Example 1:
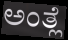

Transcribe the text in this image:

ಅಂತ್ಲೆ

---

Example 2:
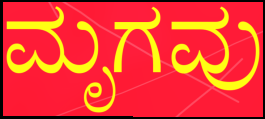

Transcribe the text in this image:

ಮೃಗವು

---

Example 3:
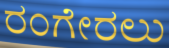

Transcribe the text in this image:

ರಂಗೇರಲು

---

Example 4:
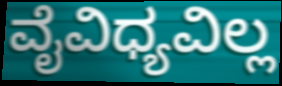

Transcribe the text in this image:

ವೈವಿಧ್ಯವಿಲ್ಲ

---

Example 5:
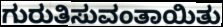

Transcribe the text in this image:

ಗುರುತಿಸುವಂತಾಯಿತು